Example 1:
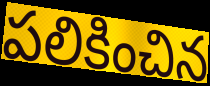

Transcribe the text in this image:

పలికించిన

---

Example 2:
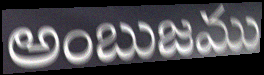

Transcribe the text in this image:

అంబుజము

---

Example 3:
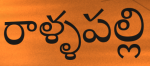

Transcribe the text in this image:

రాళ్ళపల్లి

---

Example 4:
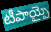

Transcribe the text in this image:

టీపాయ్పై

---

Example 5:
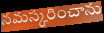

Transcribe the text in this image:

నమస్కరించాను